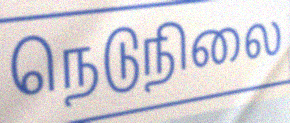
நெடுநிலை